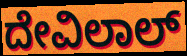
ದೇವಿಲಾಲ್